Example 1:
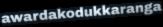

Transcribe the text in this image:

awardakodukkaranga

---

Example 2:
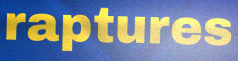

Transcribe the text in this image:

raptures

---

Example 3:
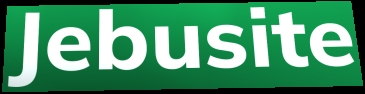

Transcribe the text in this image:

Jebusite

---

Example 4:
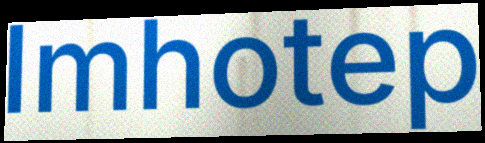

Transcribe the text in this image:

Imhotep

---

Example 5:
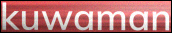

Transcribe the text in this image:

kuwaman